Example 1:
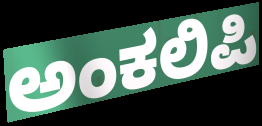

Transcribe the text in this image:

ಅಂಕಲಿಪಿ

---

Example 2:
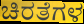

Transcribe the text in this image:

ಚಿರತೆಗಳ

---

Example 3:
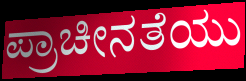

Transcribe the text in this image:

ಪ್ರಾಚೀನತೆಯು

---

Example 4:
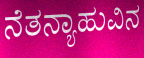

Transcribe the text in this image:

ನೆತನ್ಯಾಹುವಿನ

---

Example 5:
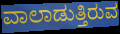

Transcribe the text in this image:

ವಾಲಾಡುತ್ತಿರುವ